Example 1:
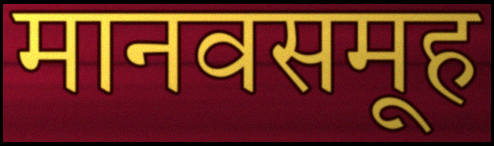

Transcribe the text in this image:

मानवसमूह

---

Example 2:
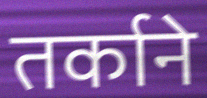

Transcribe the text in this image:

तर्काने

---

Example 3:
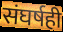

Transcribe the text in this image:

संघर्षही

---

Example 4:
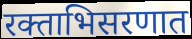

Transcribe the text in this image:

रक्ताभिसरणात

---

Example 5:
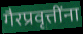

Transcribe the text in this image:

गैरप्रवृत्तींना